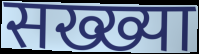
सख्ख्या